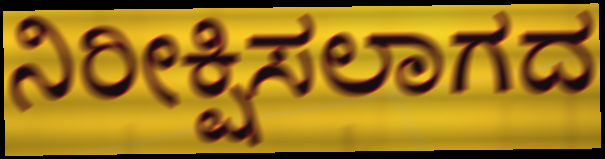
ನಿರೀಕ್ಷಿಸಲಾಗದ